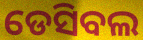
ଡେସିବଲ